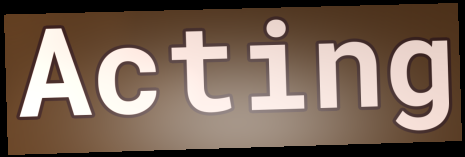
Acting